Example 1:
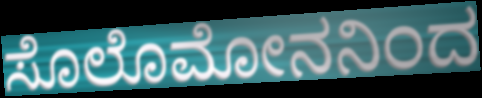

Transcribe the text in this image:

ಸೊಲೊಮೋನನಿಂದ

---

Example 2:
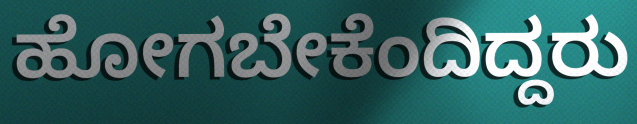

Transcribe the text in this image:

ಹೋಗಬೇಕೆಂದಿದ್ದರು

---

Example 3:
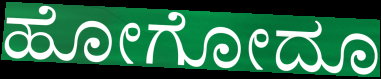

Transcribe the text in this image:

ಹೋಗೋದೂ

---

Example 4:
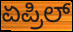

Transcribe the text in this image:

ಏಪ್ರಿಲ್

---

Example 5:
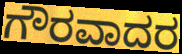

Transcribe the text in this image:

ಗೌರವಾದರ